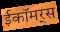
ईकॉमर्स